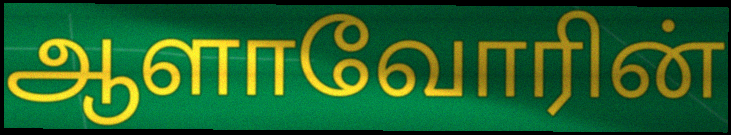
ஆளாவோரின்